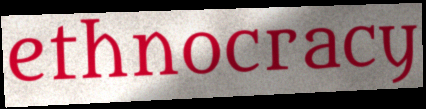
ethnocracy